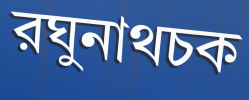
রঘুনাথচক